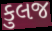
કુલજ